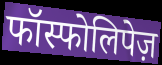
फॉस्फोलिपेज़